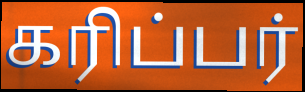
கரிப்பர்